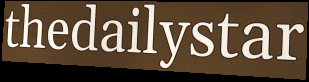
thedailystar